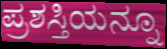
ಪ್ರಶಸ್ತಿಯನ್ನೂ